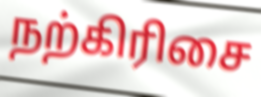
நற்கிரிசை